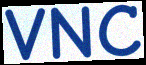
VNC